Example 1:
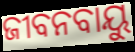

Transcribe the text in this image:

ଜୀବନବାୟୁ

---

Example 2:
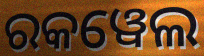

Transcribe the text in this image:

ରକୱେଲ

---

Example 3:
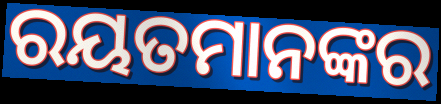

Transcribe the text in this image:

ରୟତମାନଙ୍କର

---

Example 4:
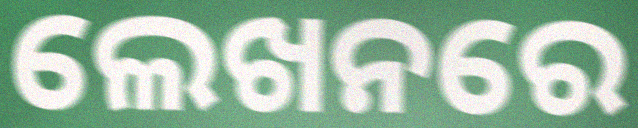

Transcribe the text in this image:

ଲେଖନରେ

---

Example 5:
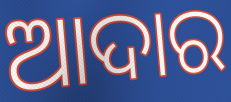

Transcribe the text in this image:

ଆଦାର